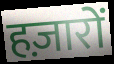
हज़ारों